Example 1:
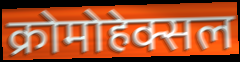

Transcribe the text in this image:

क्रोमोहेक्सल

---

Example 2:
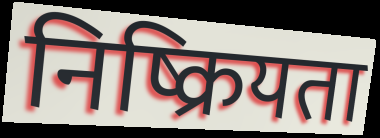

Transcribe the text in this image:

निष्क्रियता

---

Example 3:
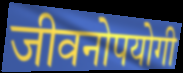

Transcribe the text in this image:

जीवनोपयोगी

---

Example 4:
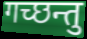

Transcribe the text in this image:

गच्छन्तु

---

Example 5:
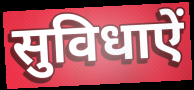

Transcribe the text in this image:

सुविधाऐं